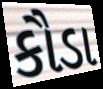
કૌડા